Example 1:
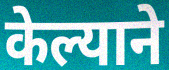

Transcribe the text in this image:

केल्याने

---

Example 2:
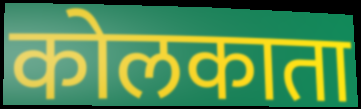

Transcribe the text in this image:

कोलकाता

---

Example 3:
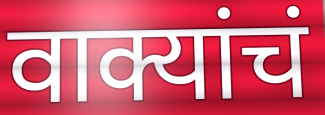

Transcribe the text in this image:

वाक्यांचं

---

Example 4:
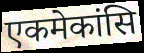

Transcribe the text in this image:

एकमेकांसि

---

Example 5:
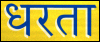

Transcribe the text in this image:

धरता